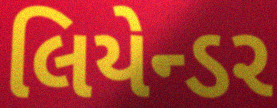
લિયેન્ડર